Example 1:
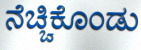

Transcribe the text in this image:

ನೆಚ್ಚಿಕೊಂಡು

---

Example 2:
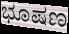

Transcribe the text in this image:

ಭೂಷಣ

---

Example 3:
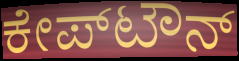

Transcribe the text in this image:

ಕೇಪ್‌ಟೌನ್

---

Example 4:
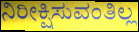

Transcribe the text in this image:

ನಿರೀಕ್ಷಿಸುವಂತಿಲ್ಲ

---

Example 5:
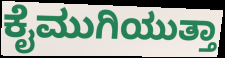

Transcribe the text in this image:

ಕೈಮುಗಿಯುತ್ತಾ